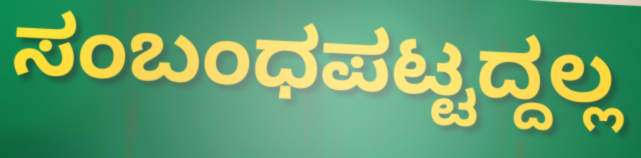
ಸಂಬಂಧಪಟ್ಟದ್ದಲ್ಲ